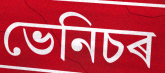
ভেনিচৰ